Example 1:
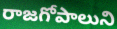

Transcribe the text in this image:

రాజగోపాలుని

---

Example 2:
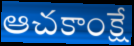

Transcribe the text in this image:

ఆచకాంక్షే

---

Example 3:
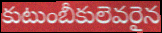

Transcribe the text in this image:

కుటుంబీకులెవరైన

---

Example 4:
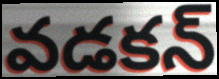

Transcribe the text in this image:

వడకన్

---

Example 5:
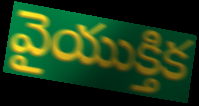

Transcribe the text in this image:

వైయుక్తిక